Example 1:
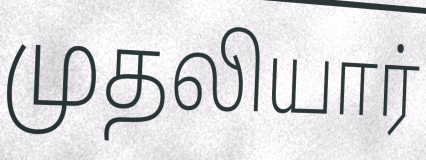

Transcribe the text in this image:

முதலியார்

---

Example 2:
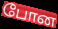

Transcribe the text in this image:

போன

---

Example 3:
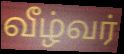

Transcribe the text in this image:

வீழ்வர்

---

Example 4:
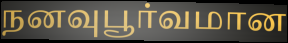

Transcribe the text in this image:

நனவுபூர்வமான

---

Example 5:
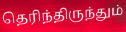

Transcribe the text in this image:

தெரிந்திருந்தும்